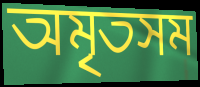
অমৃতসম